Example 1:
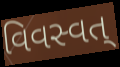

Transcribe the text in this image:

વિવસ્વત્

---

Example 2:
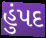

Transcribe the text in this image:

હુંપદ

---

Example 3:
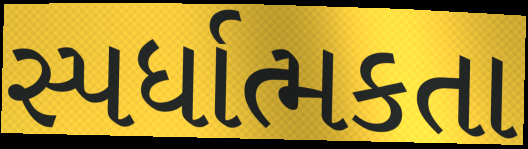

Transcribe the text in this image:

સ્પર્ધાત્મકતા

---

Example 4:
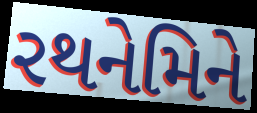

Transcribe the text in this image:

રથનેમિને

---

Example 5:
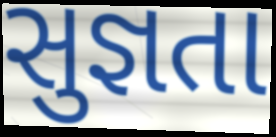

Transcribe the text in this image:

સુજ્ઞતા